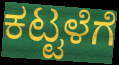
ಕಟ್ಟಳೆಗೆ